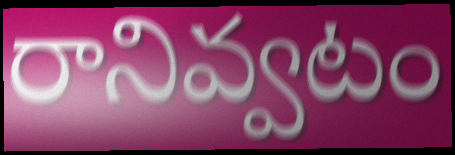
రానివ్వటం